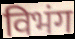
विभंग